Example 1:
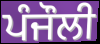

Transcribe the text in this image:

ਪੰਜੌਲੀ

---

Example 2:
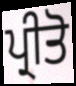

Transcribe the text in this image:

ਪ੍ਰੀਤੋ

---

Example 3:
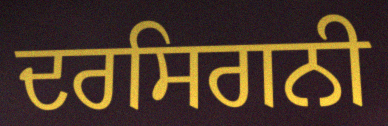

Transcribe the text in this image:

ਦਰਸਿਗਨੀ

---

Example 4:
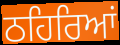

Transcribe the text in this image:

ਠਹਿਰਿਆਂ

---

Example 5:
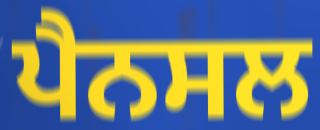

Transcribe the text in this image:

ਪੈਨਸਲ